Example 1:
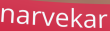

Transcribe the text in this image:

narvekar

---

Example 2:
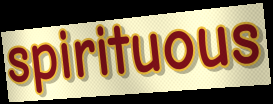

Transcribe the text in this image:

spirituous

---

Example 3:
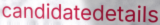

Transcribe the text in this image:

candidatedetails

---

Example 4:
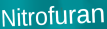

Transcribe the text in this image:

Nitrofuran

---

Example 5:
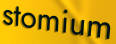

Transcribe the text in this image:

stomium